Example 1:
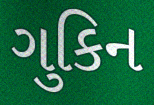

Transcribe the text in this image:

ગુકિન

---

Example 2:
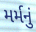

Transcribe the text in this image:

મર્મનું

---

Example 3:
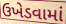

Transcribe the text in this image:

ઉખેડવામાં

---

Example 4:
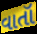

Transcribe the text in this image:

વાતૉ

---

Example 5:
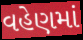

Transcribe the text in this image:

વહેણમાં